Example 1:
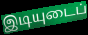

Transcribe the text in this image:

இடியுடைப்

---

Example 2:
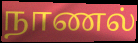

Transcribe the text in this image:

நாணல்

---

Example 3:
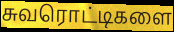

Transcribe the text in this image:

சுவரொட்டிகளை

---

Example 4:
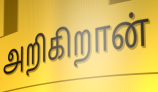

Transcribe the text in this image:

அறிகிறான்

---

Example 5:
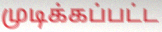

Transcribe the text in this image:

முடிக்கப்பட்ட